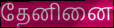
தேனினை